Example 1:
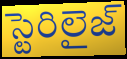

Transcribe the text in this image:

స్టెరిలైజ్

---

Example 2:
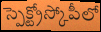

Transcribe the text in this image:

స్పెక్ట్రోస్కోపీలో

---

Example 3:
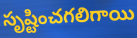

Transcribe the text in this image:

సృష్టించగలిగాయి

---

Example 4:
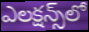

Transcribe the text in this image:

ఎలక్షన్స్‌లో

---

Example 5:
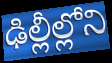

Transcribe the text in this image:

ఢిల్లీల్లోని